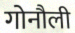
गोनौली